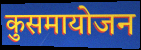
कुसमायोजन